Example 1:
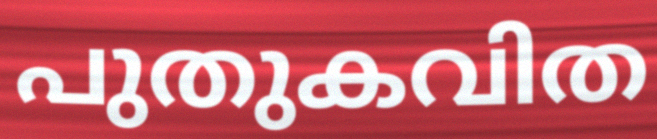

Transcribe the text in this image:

പുതുകവിത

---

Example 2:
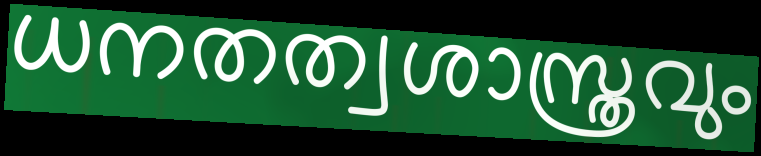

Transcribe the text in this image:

ധനതത്വശാസ്ത്രവും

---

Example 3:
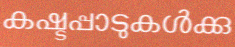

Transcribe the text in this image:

കഷ്ടപ്പാടുകൾക്കു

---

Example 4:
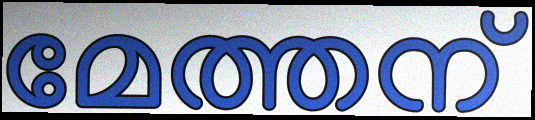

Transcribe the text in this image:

മേത്തന്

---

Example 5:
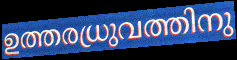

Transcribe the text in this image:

ഉത്തരധ്രുവത്തിനു